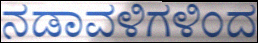
ನಡಾವಳಿಗಳಿಂದ